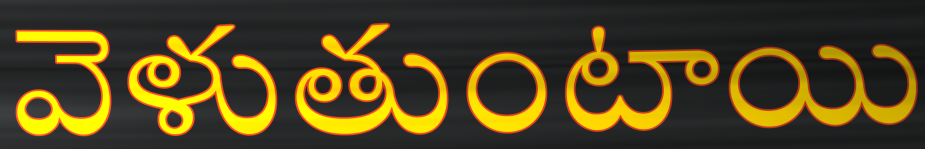
వెళుతుంటాయి